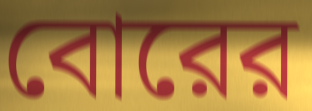
বোরের